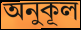
অনুকূল